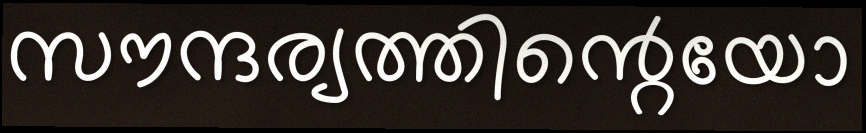
സൗന്ദര്യത്തിന്റെയോ